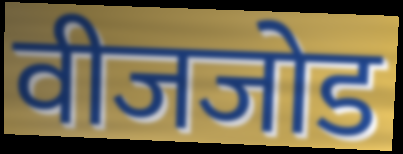
वीजजोड